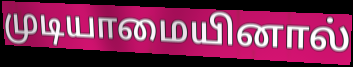
முடியாமையினால்